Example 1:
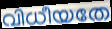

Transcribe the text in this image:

വിധീയതേ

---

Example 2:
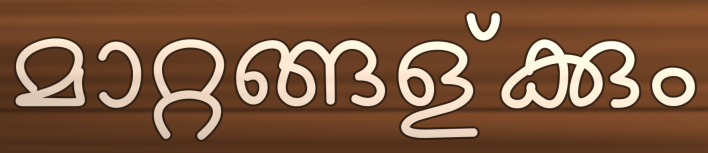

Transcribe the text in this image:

മാറ്റങ്ങള്ക്കും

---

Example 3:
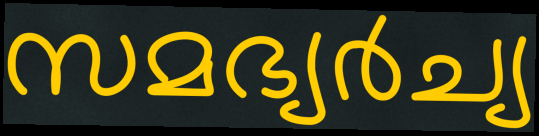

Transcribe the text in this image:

സമഭ്യർച്യ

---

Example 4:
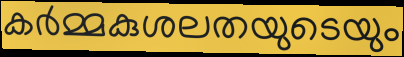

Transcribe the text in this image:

കർമ്മകുശലതയുടെയും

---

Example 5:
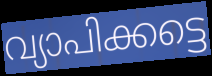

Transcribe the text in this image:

വ്യാപിക്കട്ടെ